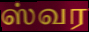
ஸ்வர